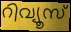
റിവ്യൂസ്